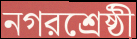
নগরশ্রেষ্ঠী